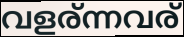
വളര്ന്നവര്